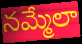
నమ్మేలా